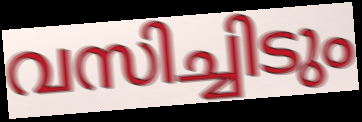
വസിച്ചിടും